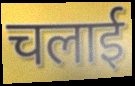
चलाई